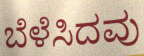
ಬೆಳೆಸಿದವು